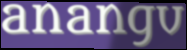
anangu